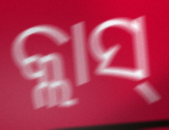
କ୍ଲାସ୍